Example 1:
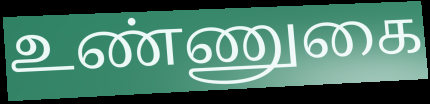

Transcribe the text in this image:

உண்ணுகை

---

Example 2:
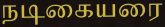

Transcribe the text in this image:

நடிகையரை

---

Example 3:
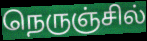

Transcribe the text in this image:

நெருஞ்சில்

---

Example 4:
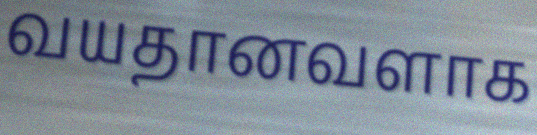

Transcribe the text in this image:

வயதானவளாக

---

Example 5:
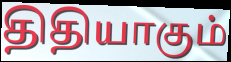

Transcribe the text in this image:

திதியாகும்